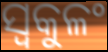
ସ୍ୱକୁଳଂ